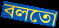
বলতো